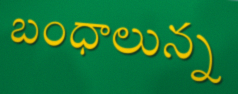
బంధాలున్న